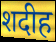
शदीह